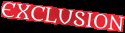
EXCLUSION